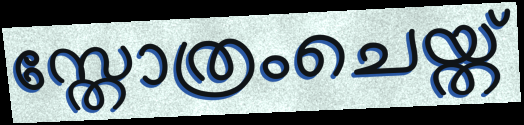
സ്തോത്രംചെയ്ത്